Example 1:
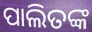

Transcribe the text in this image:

ପାଲିତଙ୍କ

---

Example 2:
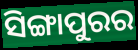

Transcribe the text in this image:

ସିଙ୍ଗାପୁରର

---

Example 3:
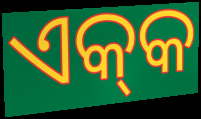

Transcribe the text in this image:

ଏକ୍‍କ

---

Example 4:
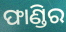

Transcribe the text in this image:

ଫାଣ୍ଡିର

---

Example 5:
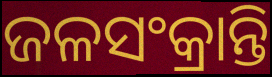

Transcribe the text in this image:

ଜଳସଂକ୍ରାନ୍ତି